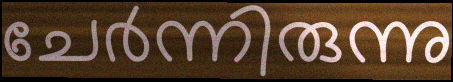
ചേർന്നിരുന്നു